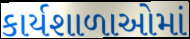
કાર્યશાળાઓમાં